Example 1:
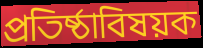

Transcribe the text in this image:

প্রতিষ্ঠাবিষয়ক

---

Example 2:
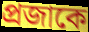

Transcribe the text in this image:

প্রজাকে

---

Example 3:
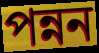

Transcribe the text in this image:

পন্নন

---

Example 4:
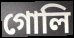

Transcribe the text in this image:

গোলি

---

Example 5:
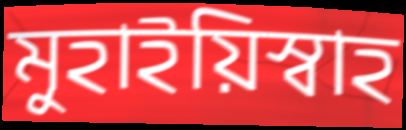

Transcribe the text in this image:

মুহাইয়িস্বাহ